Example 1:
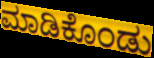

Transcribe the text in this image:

ಮಾಡಿಕೊಂಡು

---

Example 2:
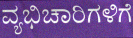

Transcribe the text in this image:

ವ್ಯಭಿಚಾರಿಗಳಿಗೆ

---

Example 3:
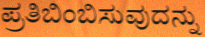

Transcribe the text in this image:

ಪ್ರತಿಬಿಂಬಿಸುವುದನ್ನು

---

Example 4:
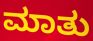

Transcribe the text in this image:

ಮಾತು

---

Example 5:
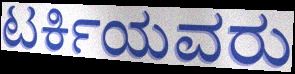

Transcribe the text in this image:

ಟರ್ಕಿಯವರು